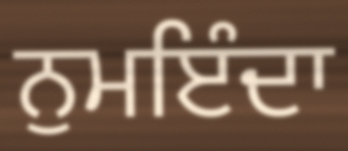
ਨੁਮਇੰਦਾ